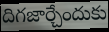
దిగజార్చేందుకు